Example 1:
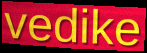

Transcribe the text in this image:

vedike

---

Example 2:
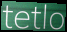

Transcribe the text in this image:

tetlo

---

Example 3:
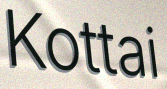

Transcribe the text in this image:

Kottai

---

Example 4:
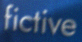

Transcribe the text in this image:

fictive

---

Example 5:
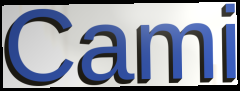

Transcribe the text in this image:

Cami